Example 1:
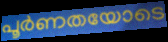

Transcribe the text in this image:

പൂർണതയോടെ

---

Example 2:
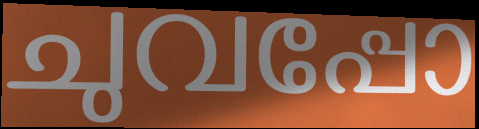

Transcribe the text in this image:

ചുവപ്പോ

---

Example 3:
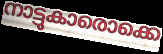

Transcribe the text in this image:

നാട്ടുകാരൊക്കെ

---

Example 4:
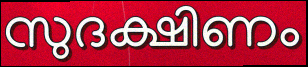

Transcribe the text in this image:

സുദക്ഷിണം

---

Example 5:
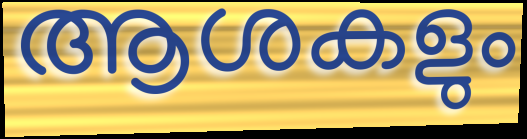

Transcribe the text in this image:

ആശകളും